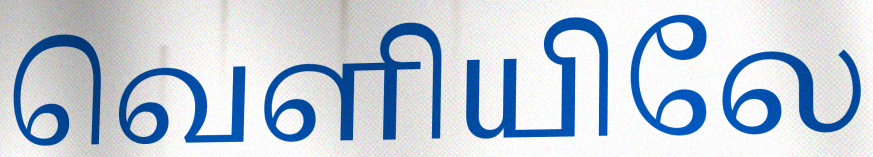
வெளியிலே